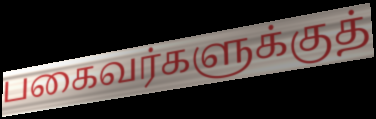
பகைவர்களுக்குத்